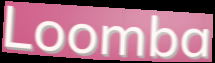
Loomba